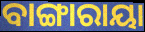
ବାଙ୍ଗାରାୟା